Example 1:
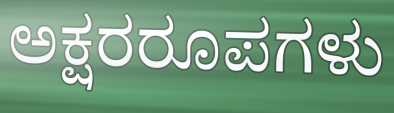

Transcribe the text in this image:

ಅಕ್ಷರರೂಪಗಳು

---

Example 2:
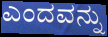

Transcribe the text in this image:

ಎಂದವನ್ನು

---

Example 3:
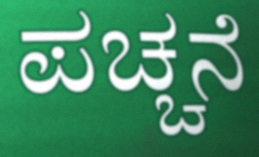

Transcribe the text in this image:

ಪಚ್ಚನೆ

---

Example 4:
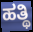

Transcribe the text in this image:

ಹತ್ಥಿ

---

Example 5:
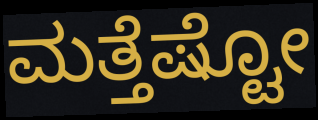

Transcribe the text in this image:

ಮತ್ತೆಷ್ಟೋ